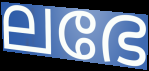
ലഭേ